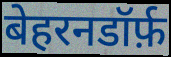
बेहरनडॉर्फ़